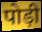
पोड़ी